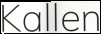
Kallen